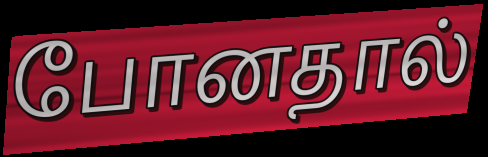
போனதால்